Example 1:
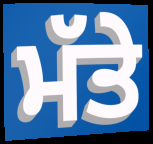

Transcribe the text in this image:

ਮੱਤੇ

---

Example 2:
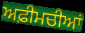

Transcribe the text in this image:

ਅਫ਼ੀਮਚੀਆਂ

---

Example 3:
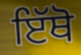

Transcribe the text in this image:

ਇੱਥੋ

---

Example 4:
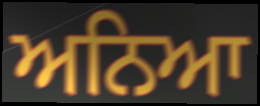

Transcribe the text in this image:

ਅਨਿਆ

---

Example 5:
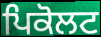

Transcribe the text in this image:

ਪਿਕੋਲਟ